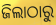
ଜିଲାଠାରୁ